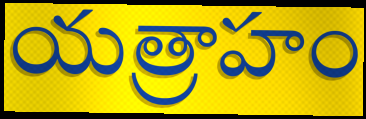
యత్రాహం